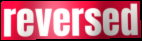
reversed